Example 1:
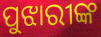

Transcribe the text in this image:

ପୁଝାରୀଙ୍କ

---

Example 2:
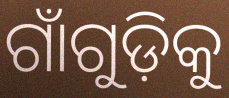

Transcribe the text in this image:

ଗାଁଗୁଡ଼ିକୁ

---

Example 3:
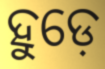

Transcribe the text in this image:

ହୁଡ଼େ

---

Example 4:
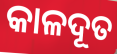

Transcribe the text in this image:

କାଳଦୂତ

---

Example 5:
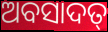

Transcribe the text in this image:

ଅବସାଦତ୍